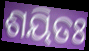
ଶୟିତଃ